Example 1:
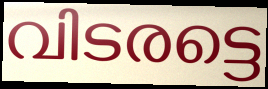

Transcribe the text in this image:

വിടരട്ടെ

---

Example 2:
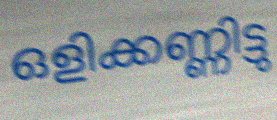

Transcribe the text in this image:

ഒളിക്കണ്ണിട്ടു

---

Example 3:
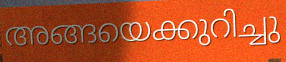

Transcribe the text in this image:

അങ്ങയെക്കുറിച്ചു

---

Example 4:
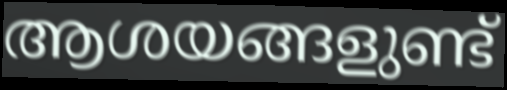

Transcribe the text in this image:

ആശയങ്ങളുണ്ട്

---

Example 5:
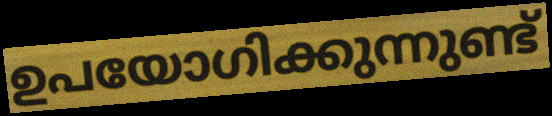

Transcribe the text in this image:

ഉപയോഗിക്കുന്നുണ്ട്